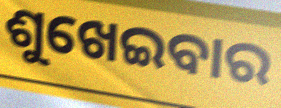
ଶୁଖେଇବାର